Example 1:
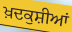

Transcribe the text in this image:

ਖ਼ਦਕੁਸ਼ੀਆਂ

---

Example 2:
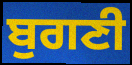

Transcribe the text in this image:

ਬੁਗਣੀ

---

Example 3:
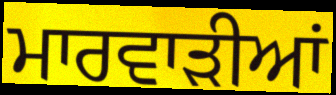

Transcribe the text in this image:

ਮਾਰਵਾੜੀਆਂ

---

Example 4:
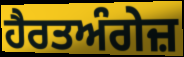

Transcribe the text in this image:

ਹੈਰਤਅੰਗੇਜ਼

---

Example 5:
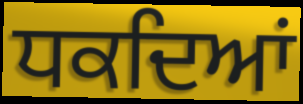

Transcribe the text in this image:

ਧਕਦਿਆਂ